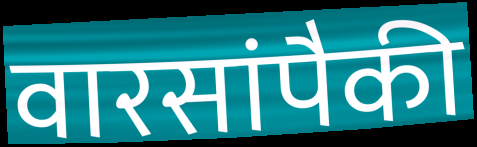
वारसांपैकी